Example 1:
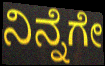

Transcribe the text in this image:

ನಿನ್ನೆಗೇ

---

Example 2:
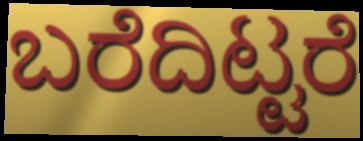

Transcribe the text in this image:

ಬರೆದಿಟ್ಟರೆ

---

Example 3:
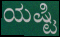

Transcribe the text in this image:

ಯಷ್ಟಿ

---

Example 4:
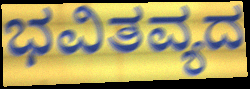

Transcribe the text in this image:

ಭವಿತವ್ಯದ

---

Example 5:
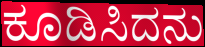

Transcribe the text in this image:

ಕೂಡಿಸಿದನು